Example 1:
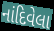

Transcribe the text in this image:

નાંદિવેલા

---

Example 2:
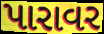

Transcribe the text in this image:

પારાવર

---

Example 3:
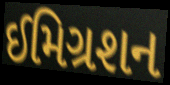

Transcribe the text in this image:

ઈમિગ્રશન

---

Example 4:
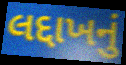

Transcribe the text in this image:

લદ્દાખનું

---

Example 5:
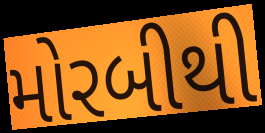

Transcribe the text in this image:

મોરબીથી